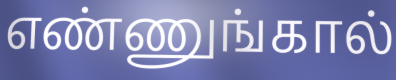
எண்ணுங்கால்